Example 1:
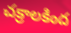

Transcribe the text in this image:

చక్రాలకింద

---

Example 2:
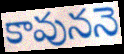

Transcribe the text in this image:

కావుననె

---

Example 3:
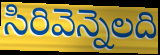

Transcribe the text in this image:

సిరివెన్నెలది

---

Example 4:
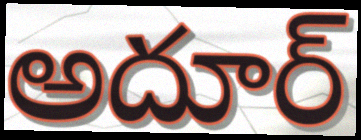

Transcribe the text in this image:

అదూర్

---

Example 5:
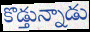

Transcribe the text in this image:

కొడ్తున్నాడు